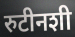
रुटीनशी